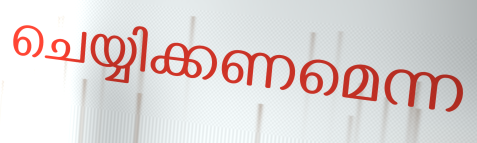
ചെയ്യിക്കണമെന്ന